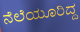
ನೆಲೆಯೂರಿದ್ದ